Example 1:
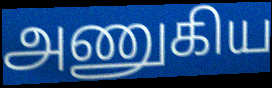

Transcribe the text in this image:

அணுகிய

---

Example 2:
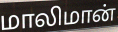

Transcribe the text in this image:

மாலிமான்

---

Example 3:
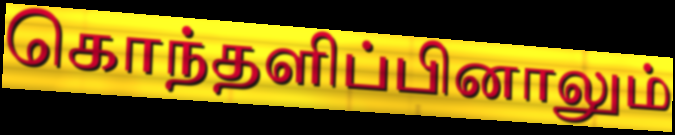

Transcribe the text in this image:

கொந்தளிப்பினாலும்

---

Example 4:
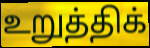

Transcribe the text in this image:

உறுத்திக்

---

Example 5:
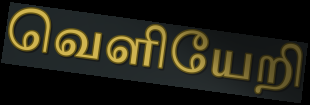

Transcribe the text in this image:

வெளியேறி